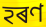
হৰণ